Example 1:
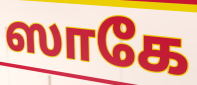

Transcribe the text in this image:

ஸாகே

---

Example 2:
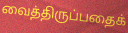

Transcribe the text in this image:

வைத்திருப்பதைக்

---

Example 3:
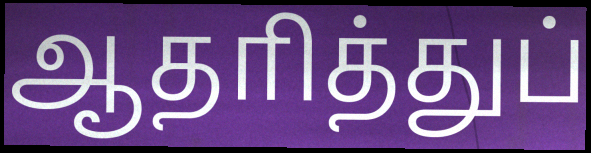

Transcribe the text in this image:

ஆதரித்துப்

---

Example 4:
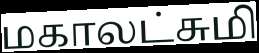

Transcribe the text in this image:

மகாலட்சுமி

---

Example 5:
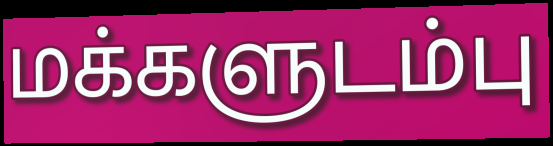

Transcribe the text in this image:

மக்களுடம்பு